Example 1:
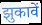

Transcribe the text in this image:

झुकावें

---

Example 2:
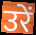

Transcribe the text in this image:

उरें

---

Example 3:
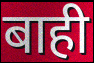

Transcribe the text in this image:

बाही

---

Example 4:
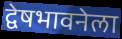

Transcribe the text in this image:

द्वेषभावनेला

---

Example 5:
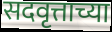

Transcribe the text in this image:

सदवृत्ताच्या